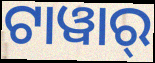
ଟାୱାର୍